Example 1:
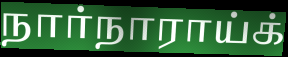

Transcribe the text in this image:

நார்நாராய்க்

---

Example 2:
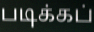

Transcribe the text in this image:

படிக்கப்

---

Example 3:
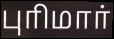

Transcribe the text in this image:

புரிமார்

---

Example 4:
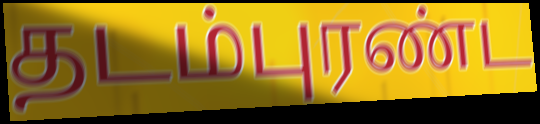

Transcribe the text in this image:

தடம்புரண்ட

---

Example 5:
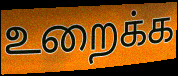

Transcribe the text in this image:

உறைக்க